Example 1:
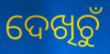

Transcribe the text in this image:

ଦେଖିଚୁଁ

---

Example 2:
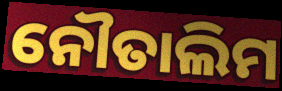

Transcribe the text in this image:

ନୌତାଲିମ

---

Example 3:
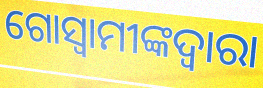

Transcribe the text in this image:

ଗୋସ୍ୱାମୀଙ୍କଦ୍ୱାରା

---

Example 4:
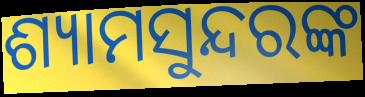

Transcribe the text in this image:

ଶ୍ୟାମସୁନ୍ଦରଙ୍କ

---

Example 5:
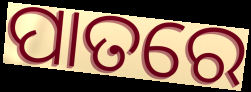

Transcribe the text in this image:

ପାତରେ